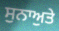
ਸੁਨਾਅੁਤੇ